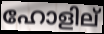
ഹോളില്